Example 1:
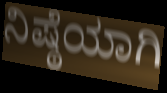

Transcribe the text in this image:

ನಿಷ್ಠೆಯಾಗಿ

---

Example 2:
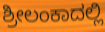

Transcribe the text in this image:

ಶ್ರೀಲಂಕಾದಲ್ಲಿ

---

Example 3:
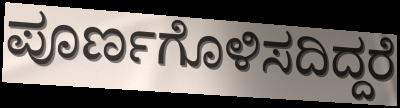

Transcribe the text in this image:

ಪೂರ್ಣಗೊಳಿಸದಿದ್ದರೆ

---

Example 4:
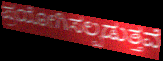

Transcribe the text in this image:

ಪ್ರಯೋಗಿಸಲ್ಪಡುತ್ತವೆ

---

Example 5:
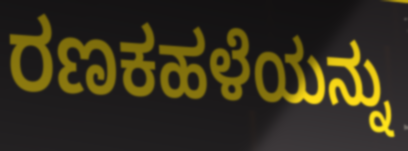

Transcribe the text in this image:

ರಣಕಹಳೆಯನ್ನು